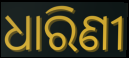
ଧାରିଣୀ